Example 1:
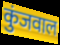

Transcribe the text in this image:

कुंजवाल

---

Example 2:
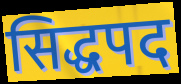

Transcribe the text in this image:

सिद्धपद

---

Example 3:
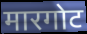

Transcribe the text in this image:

मारगोट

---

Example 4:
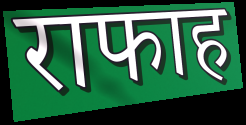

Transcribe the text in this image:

राफाह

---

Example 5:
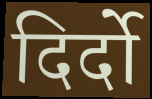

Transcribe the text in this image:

दिर्दो